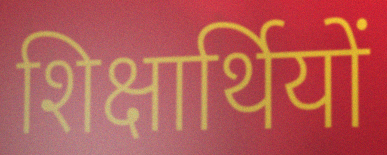
शिक्षार्थियों